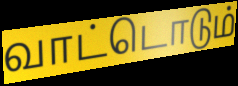
வாட்டொடும்